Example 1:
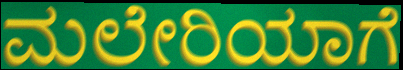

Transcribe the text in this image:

ಮಲೇರಿಯಾಗೆ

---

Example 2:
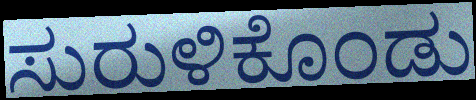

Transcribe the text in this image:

ಸುರುಳಿಕೊಂಡು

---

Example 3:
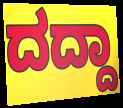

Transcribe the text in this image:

ದದ್ದಾ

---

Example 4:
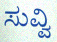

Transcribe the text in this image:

ಸುವ್ವಿ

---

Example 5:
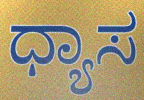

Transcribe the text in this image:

ಧ್ಯಾಸ